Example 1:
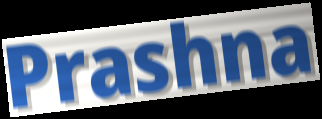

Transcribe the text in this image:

Prashna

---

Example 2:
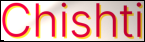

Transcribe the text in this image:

Chishti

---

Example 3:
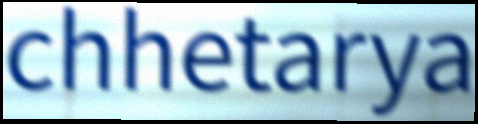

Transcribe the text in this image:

chhetarya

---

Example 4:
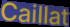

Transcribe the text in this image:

Caillat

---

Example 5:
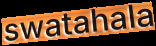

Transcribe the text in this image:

swatahala